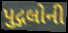
પુદ્ગલોની